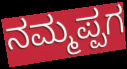
ನಮ್ಮಪ್ಪಗ